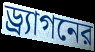
ড্র্যাগনের